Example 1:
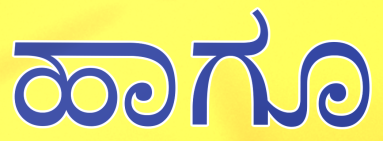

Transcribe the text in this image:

ಹಾಗೂ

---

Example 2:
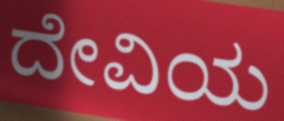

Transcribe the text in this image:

ದೇವಿಯ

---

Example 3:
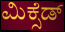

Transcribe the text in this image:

ಮಿಕ್ಸೆಡ್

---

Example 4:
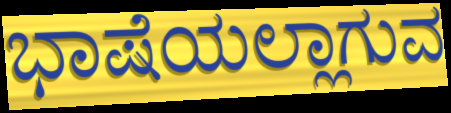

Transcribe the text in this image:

ಭಾಷೆಯಲ್ಲಾಗುವ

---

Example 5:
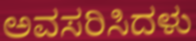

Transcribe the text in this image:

ಅವಸರಿಸಿದಳು